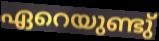
ഏറെയുണ്ടു്